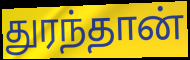
துரந்தான்